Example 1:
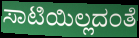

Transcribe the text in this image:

ಸಾಟಿಯಿಲ್ಲದಂತೆ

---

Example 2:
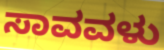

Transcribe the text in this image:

ಸಾವವಳು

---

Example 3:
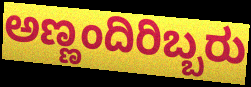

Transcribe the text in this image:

ಅಣ್ಣಂದಿರಿಬ್ಬರು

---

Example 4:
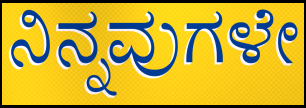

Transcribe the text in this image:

ನಿನ್ನವುಗಳೇ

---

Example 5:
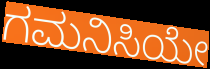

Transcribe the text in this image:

ಗಮನಿಸಿಯೇ